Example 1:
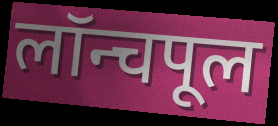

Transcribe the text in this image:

लॉन्चपूल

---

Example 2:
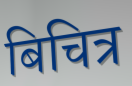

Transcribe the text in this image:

बिचित्र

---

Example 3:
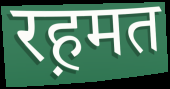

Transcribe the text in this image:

रह़मत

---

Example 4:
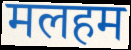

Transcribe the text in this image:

मलहम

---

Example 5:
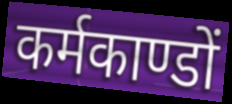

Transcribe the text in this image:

कर्मकाण्डों